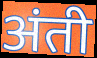
अंती